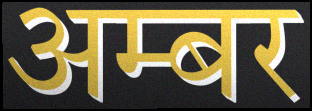
अम्बर